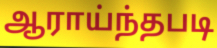
ஆராய்ந்தபடி